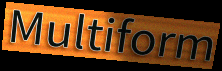
Multiform